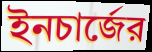
ইনচার্জের